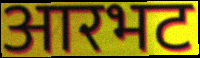
आरभट